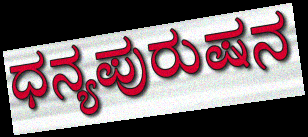
ಧನ್ಯಪುರುಷನ